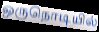
ஒருநொடியில்